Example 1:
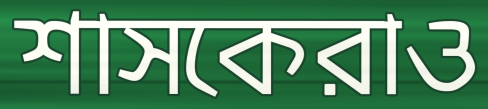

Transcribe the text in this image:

শাসকেরাও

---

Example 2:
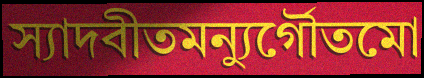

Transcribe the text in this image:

স্যাদবীতমন্যুর্গৌতমো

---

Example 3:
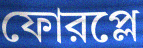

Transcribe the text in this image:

ফোরপ্লে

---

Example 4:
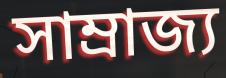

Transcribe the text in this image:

সাম্রাজ্য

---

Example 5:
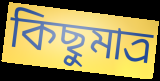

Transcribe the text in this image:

কিছুমাত্র